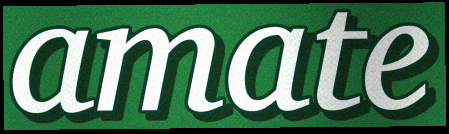
amate